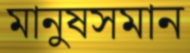
মানুষসমান